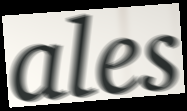
ales